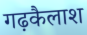
गढ़कैलाश